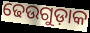
ଢେଉଗୁଡ଼ାକ